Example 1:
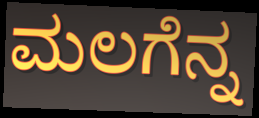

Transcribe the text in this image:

ಮಲಗೆನ್ನ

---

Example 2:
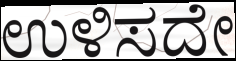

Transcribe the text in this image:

ಉಳಿಸದೇ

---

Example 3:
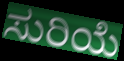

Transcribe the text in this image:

ಸುರಿಯೆ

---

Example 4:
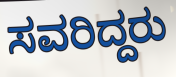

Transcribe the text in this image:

ಸವರಿದ್ದರು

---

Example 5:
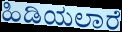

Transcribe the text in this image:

ಹಿಡಿಯಲಾರೆ